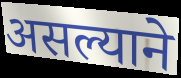
असल्‍याने